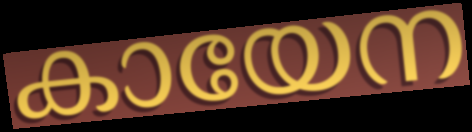
കായേന